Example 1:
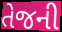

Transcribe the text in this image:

તેજની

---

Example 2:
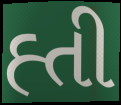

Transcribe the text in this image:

હ્તી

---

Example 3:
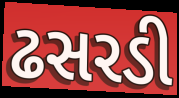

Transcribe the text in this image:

ઢસરડી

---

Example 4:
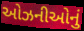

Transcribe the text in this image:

ઓઝનીઓનું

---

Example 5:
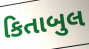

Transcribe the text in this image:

કિતાબુલ